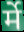
र्मे